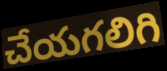
చేయగలిగి